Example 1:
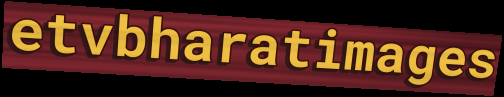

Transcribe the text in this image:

etvbharatimages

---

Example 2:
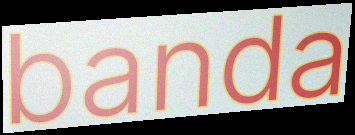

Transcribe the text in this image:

banda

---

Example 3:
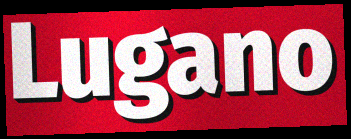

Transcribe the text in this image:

Lugano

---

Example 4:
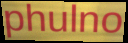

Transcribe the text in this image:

phulno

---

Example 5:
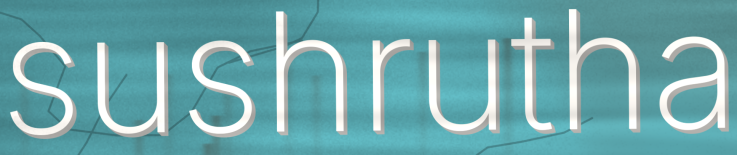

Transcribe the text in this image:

sushrutha